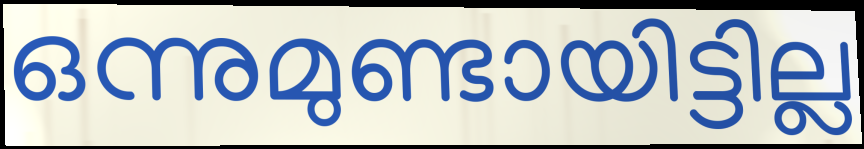
ഒന്നുമുണ്ടായിട്ടില്ല